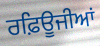
ਰਫ਼ਿਊਜੀਆਂ